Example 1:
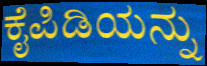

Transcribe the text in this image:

ಕೈಪಿಡಿಯನ್ನು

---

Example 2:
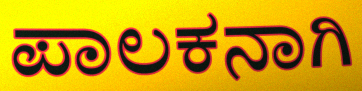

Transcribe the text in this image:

ಪಾಲಕನಾಗಿ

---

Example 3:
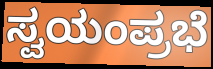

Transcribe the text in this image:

ಸ್ವಯಂಪ್ರಭೆ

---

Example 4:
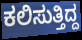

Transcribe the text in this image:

ಕಲಿಸುತ್ತಿದ್ದ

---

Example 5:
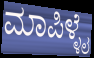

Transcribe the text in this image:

ಮಾಪಿಳ್ಳೈ